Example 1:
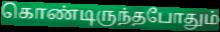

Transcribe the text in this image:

கொண்டிருந்தபோதும்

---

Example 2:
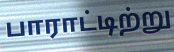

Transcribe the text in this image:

பாராட்டிற்று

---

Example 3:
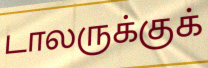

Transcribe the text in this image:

டாலருக்குக்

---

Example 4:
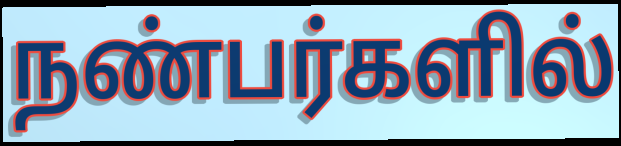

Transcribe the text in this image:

நண்பர்களில்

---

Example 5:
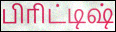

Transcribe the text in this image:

பிரிட்டிஷ்